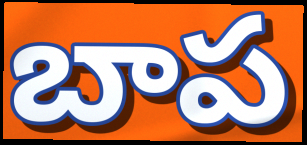
బాప